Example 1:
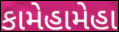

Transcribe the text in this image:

કામેહામેહા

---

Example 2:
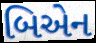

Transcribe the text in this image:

બિએન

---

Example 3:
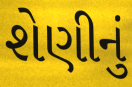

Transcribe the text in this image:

શેણીનું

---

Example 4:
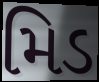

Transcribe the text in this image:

મિડ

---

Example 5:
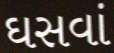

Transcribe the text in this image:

ઘસવાં